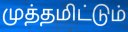
முத்தமிட்டும்